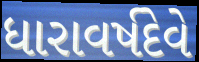
ધારાવર્ષદેવે